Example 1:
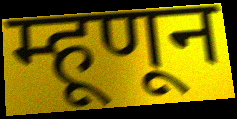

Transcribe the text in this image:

म्हूणून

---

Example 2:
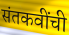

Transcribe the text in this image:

संतकवींची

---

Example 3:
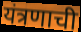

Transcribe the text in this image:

यंत्रणाची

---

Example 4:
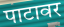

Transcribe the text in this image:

पाटावर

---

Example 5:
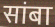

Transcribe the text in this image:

सांबा